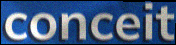
conceit